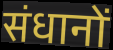
संधानों